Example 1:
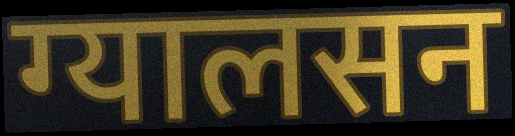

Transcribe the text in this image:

ग्यालसन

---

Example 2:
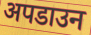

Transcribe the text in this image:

अपडाउन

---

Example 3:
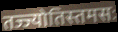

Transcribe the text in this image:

तज्ज्योतिस्तमसः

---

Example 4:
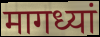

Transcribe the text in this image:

मागध्यां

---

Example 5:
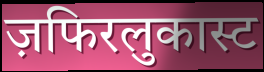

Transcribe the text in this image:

ज़फिरलुकास्ट